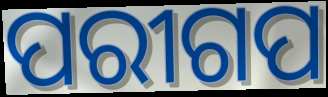
ପରୀଗପ